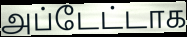
அப்டேட்டாக